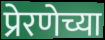
प्रेरणेच्या